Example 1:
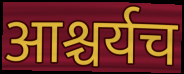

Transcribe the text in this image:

आश्चर्यच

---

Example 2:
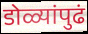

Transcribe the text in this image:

डोळ्यांपुढं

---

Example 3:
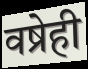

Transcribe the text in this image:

वष्रेही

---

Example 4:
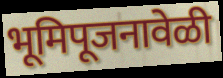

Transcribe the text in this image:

भूमिपूजनावेळी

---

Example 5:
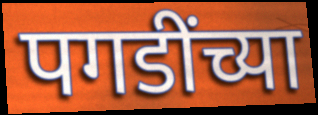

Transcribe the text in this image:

पगडींच्या